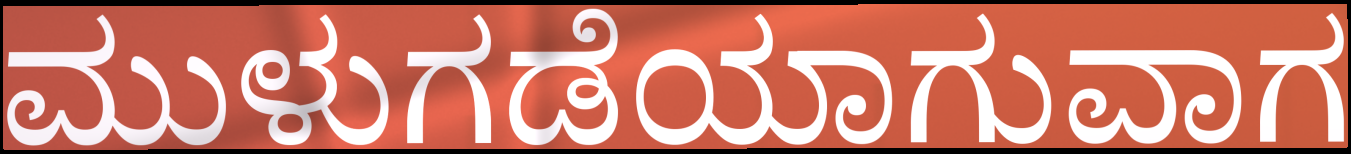
ಮುಳುಗಡೆಯಾಗುವಾಗ